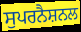
ਸੁਪਰਨੈਸ਼ਨਲ